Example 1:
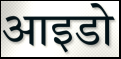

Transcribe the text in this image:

आइडो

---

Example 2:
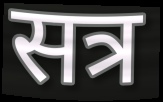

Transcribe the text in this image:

सत्र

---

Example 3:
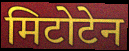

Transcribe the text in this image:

मिटोटेन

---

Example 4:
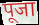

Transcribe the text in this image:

पूजा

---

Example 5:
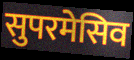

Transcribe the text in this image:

सुपरमेसिव